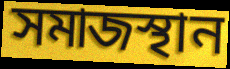
সমাজস্থান